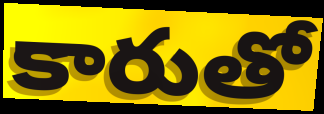
కారుతో